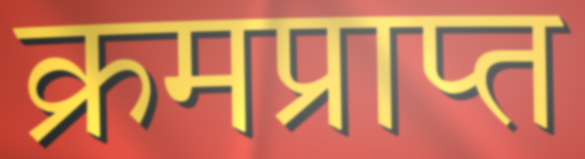
क्रमप्राप्‍त